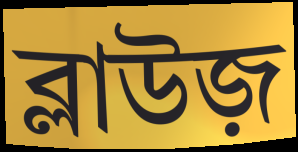
ব্লাউজ়